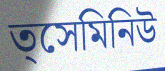
ত্সেমিনিউ